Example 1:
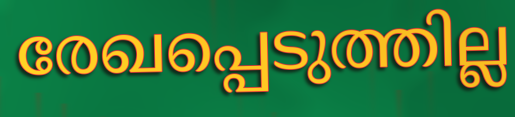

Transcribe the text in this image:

രേഖപ്പെടുത്തില്ല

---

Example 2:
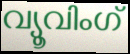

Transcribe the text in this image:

വ്യൂവിംഗ്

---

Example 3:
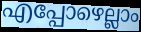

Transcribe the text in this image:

എപ്പോഴെല്ലാം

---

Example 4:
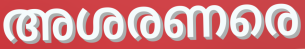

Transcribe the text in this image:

അശരണരെ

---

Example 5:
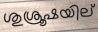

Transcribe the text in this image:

ശുശ്രൂഷയില്